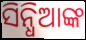
ସିନ୍ଧିଆଙ୍କ